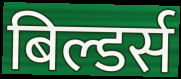
बिल्डर्स